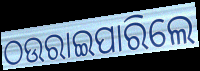
ଠଉରାଇପାରିଲେ